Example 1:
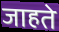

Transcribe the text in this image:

जाहते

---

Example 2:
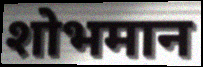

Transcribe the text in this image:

शोभमान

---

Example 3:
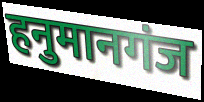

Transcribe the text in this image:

हनुमानगंज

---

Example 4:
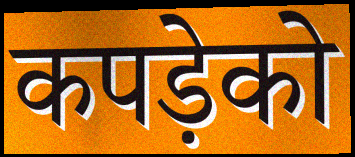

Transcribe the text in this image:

कपड़ेको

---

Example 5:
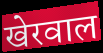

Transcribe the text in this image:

खेरवाल